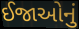
ઈજાઓનું